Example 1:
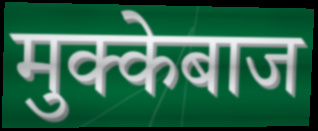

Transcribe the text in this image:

मुक्केबाज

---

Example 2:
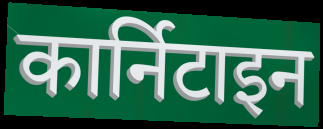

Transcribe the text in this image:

कार्निटाइन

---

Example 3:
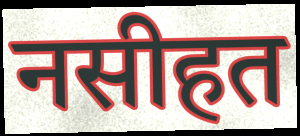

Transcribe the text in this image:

नसीहत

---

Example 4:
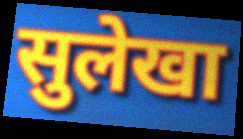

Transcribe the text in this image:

सुलेखा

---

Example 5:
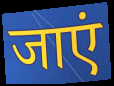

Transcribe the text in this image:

जाएं